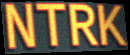
NTRK